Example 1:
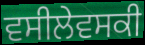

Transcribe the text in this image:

ਵਸੀਲੇਵਸਕੀ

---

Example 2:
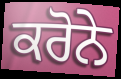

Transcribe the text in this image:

ਕਰੋਨੇ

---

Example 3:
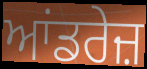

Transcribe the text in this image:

ਆਂਡਰੇਜ਼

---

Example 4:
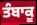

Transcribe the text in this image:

ਤੰਬਾਕੂ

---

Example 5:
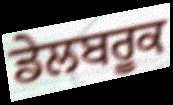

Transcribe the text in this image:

ਡੇਲਬਰੂਕ